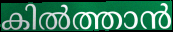
കിൽത്താൻ